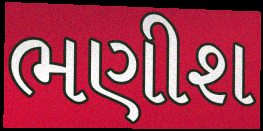
ભણીશ